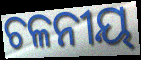
ଚଳନୀୟ